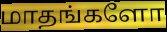
மாதங்களோ